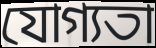
যোগ্যতা